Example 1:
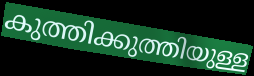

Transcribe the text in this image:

കുത്തിക്കുത്തിയുള്ള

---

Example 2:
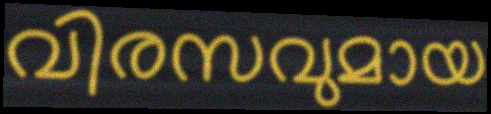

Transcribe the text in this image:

വിരസവുമായ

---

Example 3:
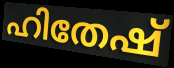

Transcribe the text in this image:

ഹിതേഷ്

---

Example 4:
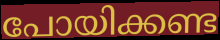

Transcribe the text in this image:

പോയിക്കണ്ട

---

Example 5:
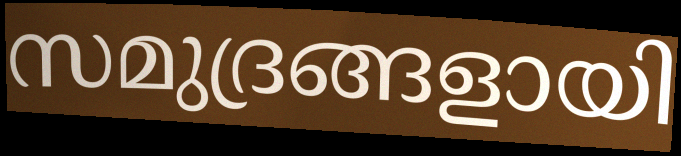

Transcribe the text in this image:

സമുദ്രങ്ങളായി